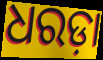
ଧରଡ଼ା